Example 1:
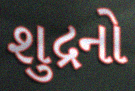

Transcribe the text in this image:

શુદ્રનો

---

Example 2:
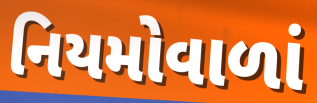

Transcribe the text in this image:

નિયમોવાળાં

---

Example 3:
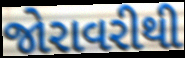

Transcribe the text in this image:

જોરાવરીથી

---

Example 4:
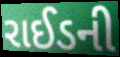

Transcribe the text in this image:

રાઈડની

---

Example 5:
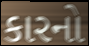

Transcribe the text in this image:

કારનો